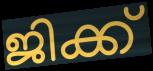
ജിക്ക്